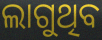
ଲାଗୁଥିବ